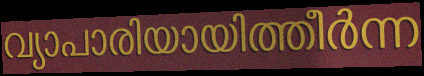
വ്യാപാരിയായിത്തീർന്ന